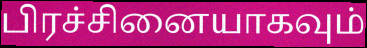
பிரச்சினையாகவும்